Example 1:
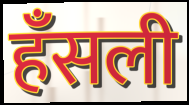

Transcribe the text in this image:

हँसली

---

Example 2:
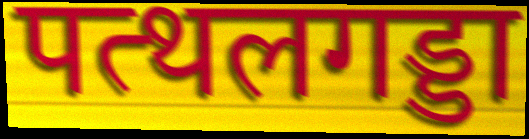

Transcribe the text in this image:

पत्थलगड्डा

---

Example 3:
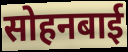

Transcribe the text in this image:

सोहनबाई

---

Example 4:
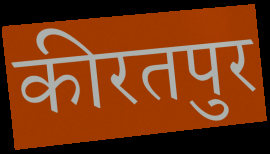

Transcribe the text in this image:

कीरतपुर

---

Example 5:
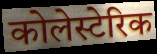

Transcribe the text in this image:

कोलेस्टेरिक